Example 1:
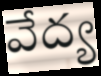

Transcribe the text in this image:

వేద్య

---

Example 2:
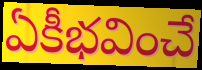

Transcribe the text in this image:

ఏకీభవించే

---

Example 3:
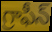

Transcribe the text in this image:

గ్రాఫీన్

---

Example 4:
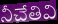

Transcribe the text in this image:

నీచేతివి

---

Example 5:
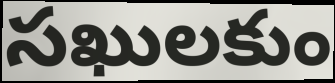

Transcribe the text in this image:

సఖులకుం